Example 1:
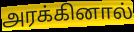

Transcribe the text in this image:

அரக்கினால்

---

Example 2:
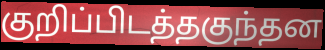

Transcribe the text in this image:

குறிப்பிடத்தகுந்தன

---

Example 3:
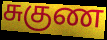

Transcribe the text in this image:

சுகுண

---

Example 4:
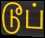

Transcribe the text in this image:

டூப்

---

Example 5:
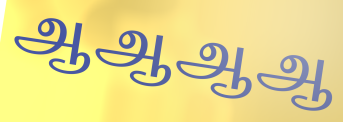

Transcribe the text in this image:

ஆஆஆஆ